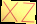
xz